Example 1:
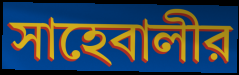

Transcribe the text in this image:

সাহেবালীর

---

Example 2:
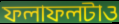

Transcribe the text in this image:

ফলাফলটাও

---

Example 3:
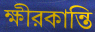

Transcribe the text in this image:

ক্ষীরকান্তি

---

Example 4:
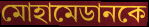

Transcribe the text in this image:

মোহামেডানকে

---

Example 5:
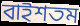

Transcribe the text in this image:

বাইশতম